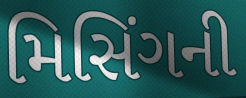
મિસિંગની